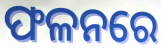
ଫଳନରେ